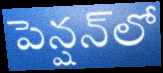
పెన్షన్‌లో